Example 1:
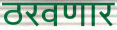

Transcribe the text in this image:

ठरवणार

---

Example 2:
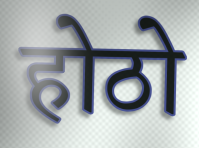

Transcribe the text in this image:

होठो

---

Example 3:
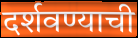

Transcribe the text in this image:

दर्शवण्याची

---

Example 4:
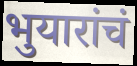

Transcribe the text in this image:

भुयारांचं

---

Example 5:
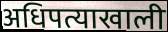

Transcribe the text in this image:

अधिपत्याखाली